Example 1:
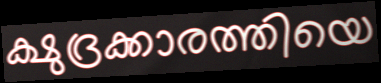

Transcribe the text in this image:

ക്ഷുദ്രക്കാരത്തിയെ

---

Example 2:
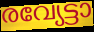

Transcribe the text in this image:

രവ്യേട്ടാ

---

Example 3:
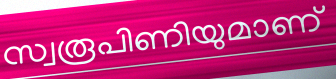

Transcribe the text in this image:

സ്വരൂപിണിയുമാണ്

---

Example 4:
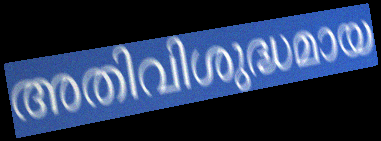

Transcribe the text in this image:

അതിവിശുദ്ധമായ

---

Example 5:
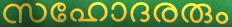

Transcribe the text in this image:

സഹോദരരും